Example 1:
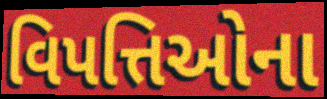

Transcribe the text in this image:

વિપત્તિઓના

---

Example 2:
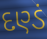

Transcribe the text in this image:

દણ્ડં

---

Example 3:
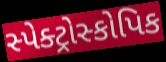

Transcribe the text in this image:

સ્પેક્ટ્રોસ્કોપિક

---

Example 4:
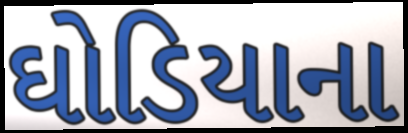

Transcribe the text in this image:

ઘોડિયાના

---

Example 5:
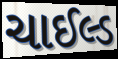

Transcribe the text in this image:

ચાઈલ્ડ